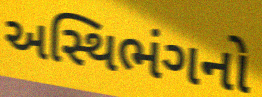
અસ્થિભંગનો